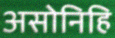
असोनिहि